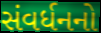
સંવર્ધનનો